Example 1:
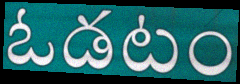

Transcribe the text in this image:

ఓడటం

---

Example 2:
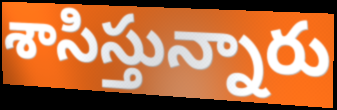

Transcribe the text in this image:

శాసిస్తున్నారు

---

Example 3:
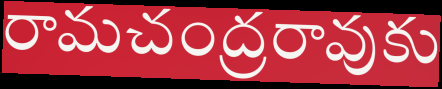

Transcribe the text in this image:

రామచంద్రరావుకు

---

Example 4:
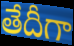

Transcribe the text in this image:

తేదీగా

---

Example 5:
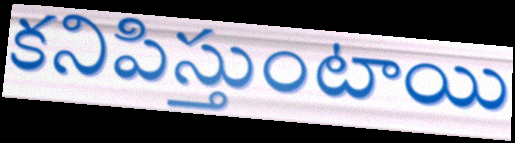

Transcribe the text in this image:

కనిపిస్తుంటాయి